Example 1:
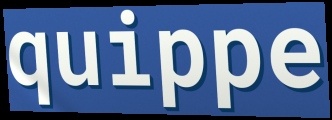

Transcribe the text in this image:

quippe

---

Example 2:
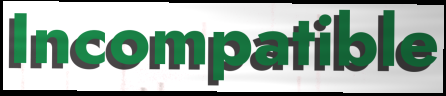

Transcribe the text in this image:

Incompatible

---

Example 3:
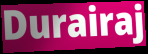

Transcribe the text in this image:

Durairaj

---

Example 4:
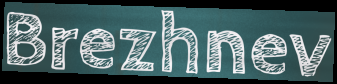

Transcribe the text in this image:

Brezhnev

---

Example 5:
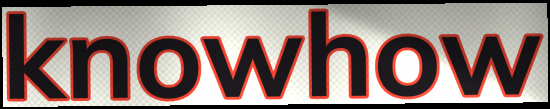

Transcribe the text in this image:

knowhow